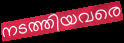
നടത്തിയവരെ